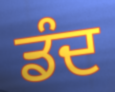
ਡੰਦ